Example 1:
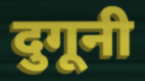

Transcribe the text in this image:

दुगूनी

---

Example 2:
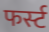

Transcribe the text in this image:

फर्स्‍ट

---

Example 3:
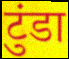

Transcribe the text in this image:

टुंडा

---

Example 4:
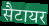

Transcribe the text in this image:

सैटायर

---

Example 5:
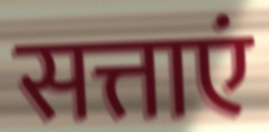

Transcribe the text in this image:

सत्ताएं